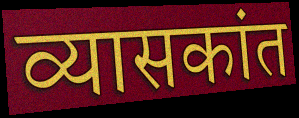
व्यासकांत